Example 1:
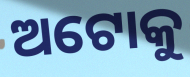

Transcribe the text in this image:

ଅଟୋକୁ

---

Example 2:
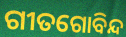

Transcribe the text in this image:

ଗୀତଗୋବିନ୍ଦ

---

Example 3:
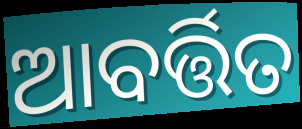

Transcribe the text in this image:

ଆବର୍ତ୍ତିତ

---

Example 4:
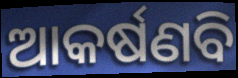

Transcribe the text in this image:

ଆକର୍ଷଣବି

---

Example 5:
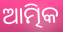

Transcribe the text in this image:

ଆତ୍ମିକ